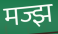
मज्झ